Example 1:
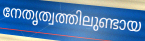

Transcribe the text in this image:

നേതൃത്വത്തിലുണ്ടായ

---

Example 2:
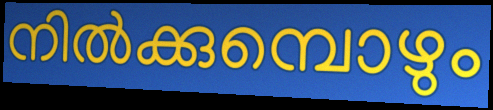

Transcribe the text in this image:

നിൽക്കുമ്പൊഴും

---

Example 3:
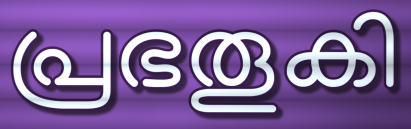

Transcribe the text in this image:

പ്രഭതൂകി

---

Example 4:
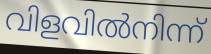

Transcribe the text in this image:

വിളവിൽനിന്ന്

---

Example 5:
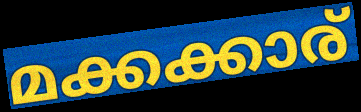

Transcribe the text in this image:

മക്കക്കാര്